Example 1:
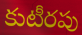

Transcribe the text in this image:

కుటీరపు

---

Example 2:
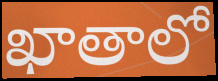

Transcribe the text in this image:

ఖాతాలో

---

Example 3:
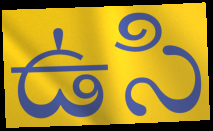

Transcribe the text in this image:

ఉసి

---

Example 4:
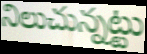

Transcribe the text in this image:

నిలుచున్నట్టు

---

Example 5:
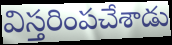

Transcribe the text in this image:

విస్తరింపచేశాడు